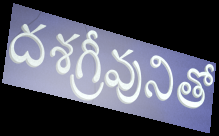
దశగ్రీవునితో